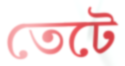
তেটে